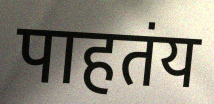
पाहतंय